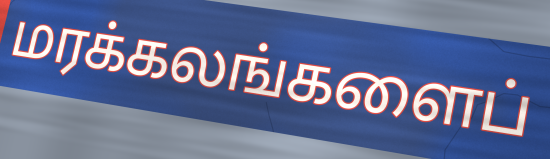
மரக்கலங்களைப்